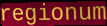
regionum